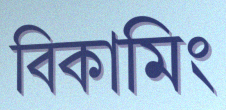
বিকামিং